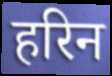
हरिन